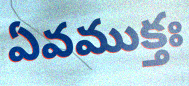
ఏవముక్తః